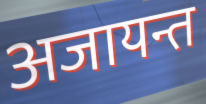
अजायन्त